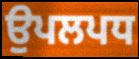
ਉਪਲਪਧ